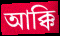
আক্কি